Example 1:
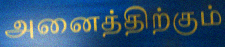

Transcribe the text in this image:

அனைத்திற்கும்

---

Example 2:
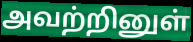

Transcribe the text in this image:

அவற்றினுள்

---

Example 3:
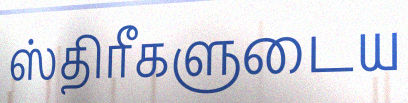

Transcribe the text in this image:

ஸ்திரீகளுடைய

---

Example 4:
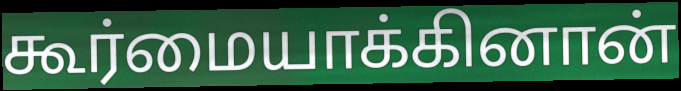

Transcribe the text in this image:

கூர்மையாக்கினான்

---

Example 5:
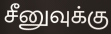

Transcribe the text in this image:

சீனுவுக்கு